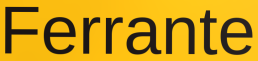
Ferrante